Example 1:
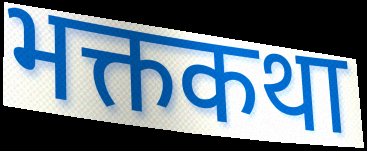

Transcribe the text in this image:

भक्तकथा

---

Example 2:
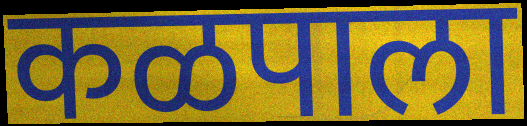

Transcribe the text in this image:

कळपाला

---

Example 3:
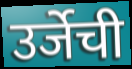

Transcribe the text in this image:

उर्जेची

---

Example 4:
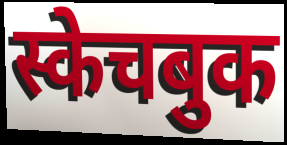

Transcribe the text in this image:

स्केचबुक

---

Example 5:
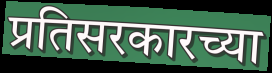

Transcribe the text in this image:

प्रतिसरकारच्या